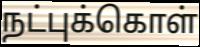
நட்புக்கொள்